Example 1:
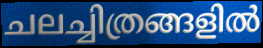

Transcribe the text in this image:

ചലച്ചിത്രങ്ങളിൽ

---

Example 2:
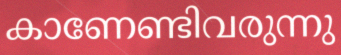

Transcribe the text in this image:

കാണേണ്ടിവരുന്നു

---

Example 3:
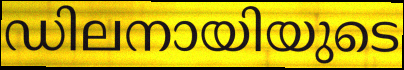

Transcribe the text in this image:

ഡിലനായിയുടെ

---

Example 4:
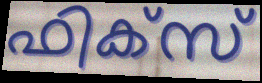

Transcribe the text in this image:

ഫിക്സ്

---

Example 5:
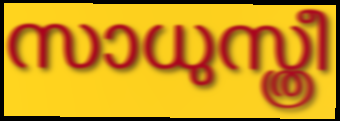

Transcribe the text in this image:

സാധുസ്ത്രീ